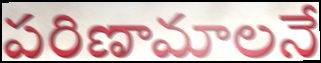
పరిణామాలనే